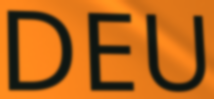
DEU